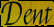
Dent